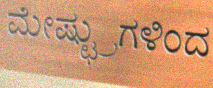
ಮೇಷ್ಟ್ರುಗಳಿಂದ